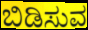
ಬಿಡಿಸುವ